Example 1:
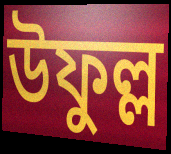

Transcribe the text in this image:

উফুল্ল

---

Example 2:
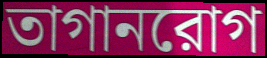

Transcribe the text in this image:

তাগানরোগ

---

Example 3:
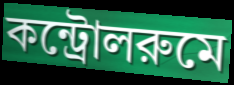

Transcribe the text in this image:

কন্ট্রোলরুমে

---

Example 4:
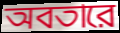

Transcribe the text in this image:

অবতারে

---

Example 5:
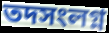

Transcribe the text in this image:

তদসংলগ্ন